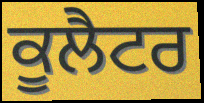
ਕੂਲੈਟਰ